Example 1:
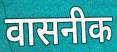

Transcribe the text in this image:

वासनीक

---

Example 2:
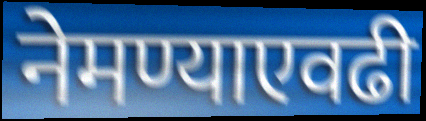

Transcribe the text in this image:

नेमण्याएवढी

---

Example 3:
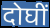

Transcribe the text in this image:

दोघीं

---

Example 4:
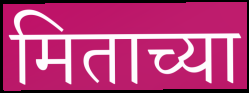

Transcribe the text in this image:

मिताच्या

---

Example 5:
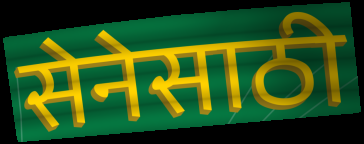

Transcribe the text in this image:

सेनेसाठी